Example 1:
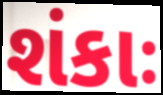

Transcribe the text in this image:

શંકાઃ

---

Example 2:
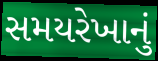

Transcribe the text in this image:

સમયરેખાનું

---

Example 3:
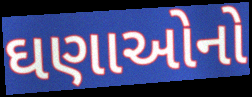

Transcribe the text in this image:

ઘણાઓનો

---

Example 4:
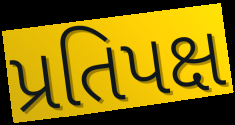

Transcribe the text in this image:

પ્રતિપક્ષ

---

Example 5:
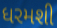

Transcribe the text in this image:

ધરમશી